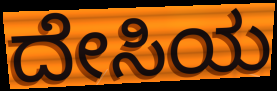
ದೇಸಿಯ